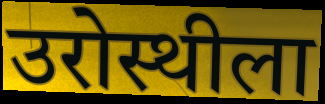
उरोस्थीला